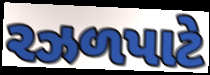
રઝળપાટે